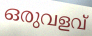
ഒരുവളവ്